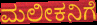
ಮಲೀಕನಿಗೆ